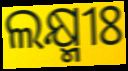
ଲକ୍ଷ୍ମୀଃ